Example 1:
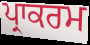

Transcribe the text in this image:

ਪ੍ਰਾਕਰਮ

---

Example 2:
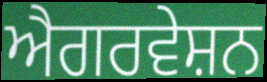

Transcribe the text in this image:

ਐਗਰਵੇਸ਼ਨ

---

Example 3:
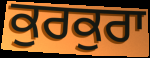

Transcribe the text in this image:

ਕੁਰਕੁਰਾ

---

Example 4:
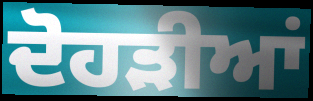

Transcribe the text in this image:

ਦੋਹੜੀਆਂ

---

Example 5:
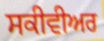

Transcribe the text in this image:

ਸਕੀਵੀਅਰ